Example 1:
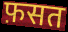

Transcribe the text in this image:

फ़सत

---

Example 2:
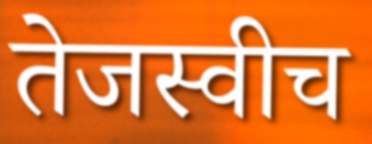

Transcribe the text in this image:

तेजस्वीच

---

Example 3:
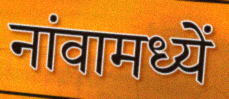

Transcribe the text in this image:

नांवामध्यें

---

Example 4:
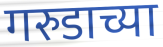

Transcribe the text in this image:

गरुडाच्या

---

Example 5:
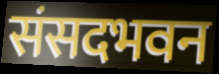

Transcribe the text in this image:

संसदभवन